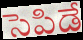
సెపిడే